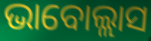
ଭାବୋଲ୍ଲାସ